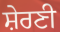
ਸ਼ੇਰਣੀ